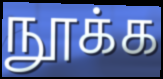
நூக்க